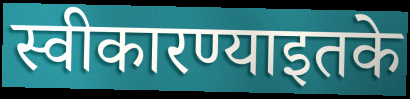
स्वीकारण्याइतके